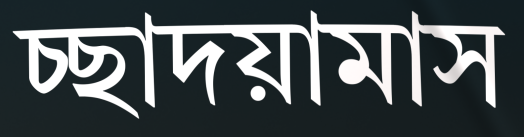
চ্ছাদয়ামাস